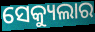
ସେକ୍ୟୁଲାର